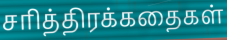
சரித்திரக்கதைகள்